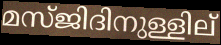
മസ്ജിദിനുള്ളില്